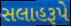
સલાહરૂપે